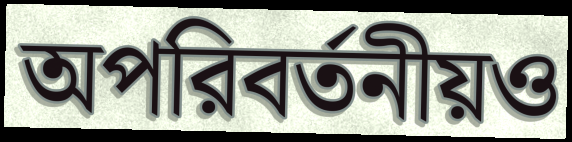
অপরিবর্তনীয়ও